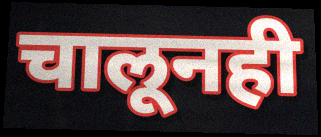
चालूनही